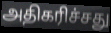
அதிகரிச்சது